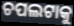
ଚପଲଟାକୁ